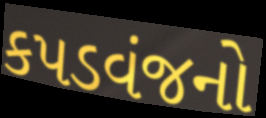
કપડવંજનો